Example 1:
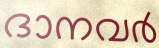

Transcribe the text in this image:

ദാനവർ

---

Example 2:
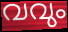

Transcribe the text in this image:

വവും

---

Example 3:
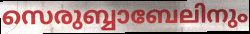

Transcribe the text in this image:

സെരുബ്ബാബേലിനും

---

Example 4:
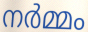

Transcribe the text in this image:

നർമ്മം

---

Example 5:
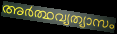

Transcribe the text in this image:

അർത്ഥവ്യത്യാസം